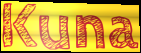
Kuna